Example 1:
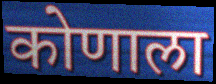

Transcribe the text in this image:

कोणाला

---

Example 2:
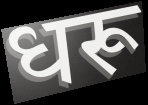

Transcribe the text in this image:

धरू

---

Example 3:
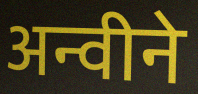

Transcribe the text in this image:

अन्वीने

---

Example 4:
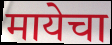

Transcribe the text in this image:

मायेचा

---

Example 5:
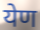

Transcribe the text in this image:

येण